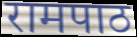
रामपाठ